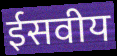
ईसवीय